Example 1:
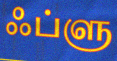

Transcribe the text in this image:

ஃப்ளு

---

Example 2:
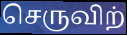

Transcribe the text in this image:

செருவிற்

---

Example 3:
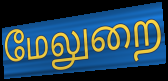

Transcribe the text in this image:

மேலுறை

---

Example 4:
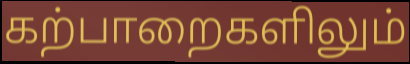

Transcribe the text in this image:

கற்பாறைகளிலும்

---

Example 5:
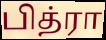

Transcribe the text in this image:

பித்ரா